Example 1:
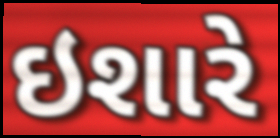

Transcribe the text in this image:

ઇશારે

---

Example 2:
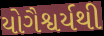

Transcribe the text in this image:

યોગૈશ્વર્યથી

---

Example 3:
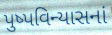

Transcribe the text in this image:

પુષ્પવિન્યાસનાં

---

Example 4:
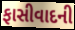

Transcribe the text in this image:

ફાસીવાદની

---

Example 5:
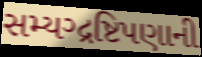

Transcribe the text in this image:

સમ્યગ્દ્રષ્ટિપણાની